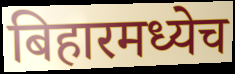
बिहारमध्येच